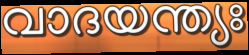
വാദയന്ത്യഃ